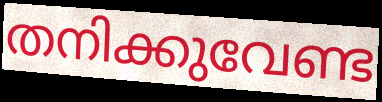
തനിക്കുവേണ്ട